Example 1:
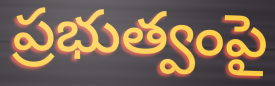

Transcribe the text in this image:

ప్రభుత్వంపై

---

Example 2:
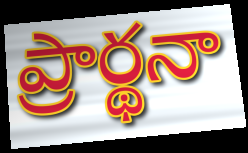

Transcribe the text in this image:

ప్రార్థనా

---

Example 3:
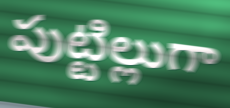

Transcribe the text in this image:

పుట్టిల్లుగా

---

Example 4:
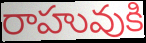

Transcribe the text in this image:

రాహువుకి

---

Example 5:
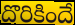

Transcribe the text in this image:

దొరికిందే